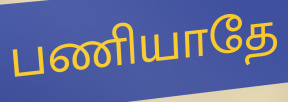
பணியாதே